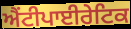
ਐਂਟੀਪਾਈਰੇਟਿਕ